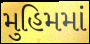
મુહિમમાં